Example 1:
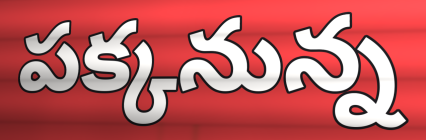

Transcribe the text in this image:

పక్కనున్న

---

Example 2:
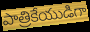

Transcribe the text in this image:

పాత్రికేయుడిగా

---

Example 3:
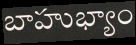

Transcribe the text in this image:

బాహుభ్యాం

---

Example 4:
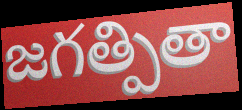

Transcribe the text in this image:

జగత్పితా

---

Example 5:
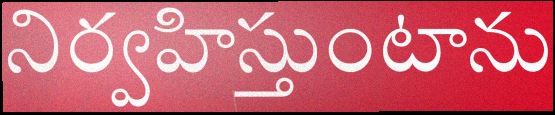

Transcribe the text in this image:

నిర్వహిస్తుంటాను